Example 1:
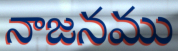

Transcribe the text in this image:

నాజనము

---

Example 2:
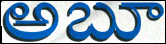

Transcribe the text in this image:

అబూ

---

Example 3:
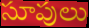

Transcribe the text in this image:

సూపులు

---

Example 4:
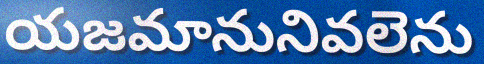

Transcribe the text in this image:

యజమానునివలెను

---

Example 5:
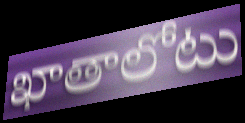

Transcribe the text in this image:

ఖాతాలోటు